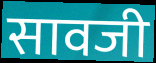
सावजी